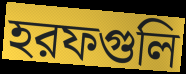
হরফগুলি